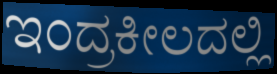
ಇಂದ್ರಕೀಲದಲ್ಲಿ